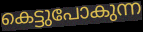
കെട്ടുപോകുന്ന